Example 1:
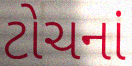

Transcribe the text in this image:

ટોચનાં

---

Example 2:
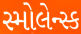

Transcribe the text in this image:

સ્મોલેન્સ્ક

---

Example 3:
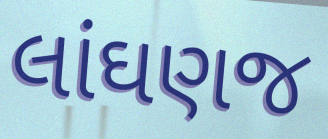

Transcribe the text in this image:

લાંઘણજ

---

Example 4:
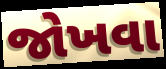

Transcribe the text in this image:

જોખવા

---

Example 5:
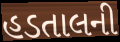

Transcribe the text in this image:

હડતાલની